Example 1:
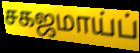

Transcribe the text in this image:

சகஜமாய்ப்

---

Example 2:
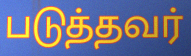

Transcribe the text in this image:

படுத்தவர்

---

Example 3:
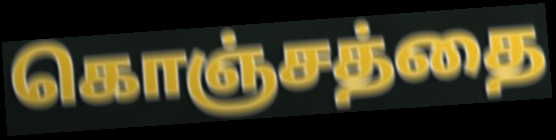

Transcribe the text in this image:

கொஞ்சத்தை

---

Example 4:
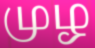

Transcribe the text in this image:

முழ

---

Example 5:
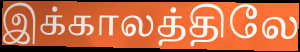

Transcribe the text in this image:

இக்காலத்திலே